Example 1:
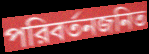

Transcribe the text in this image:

পরিবর্তনজনিত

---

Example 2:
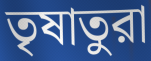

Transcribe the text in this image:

তৃষাতুরা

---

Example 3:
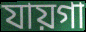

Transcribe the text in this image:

যায়গা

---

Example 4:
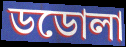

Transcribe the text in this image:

ডডোলা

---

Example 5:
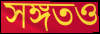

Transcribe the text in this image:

সঙ্গতও